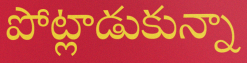
పోట్లాడుకున్నా